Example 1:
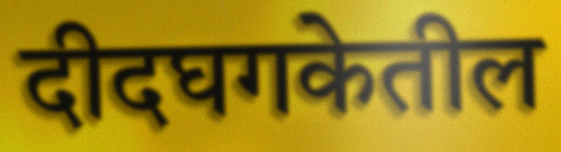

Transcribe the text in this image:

दीदघगकेतील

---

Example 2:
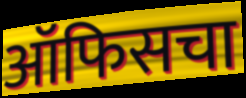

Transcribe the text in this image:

ऑफिसचा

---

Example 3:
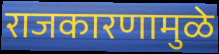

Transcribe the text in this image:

राजकारणामुळे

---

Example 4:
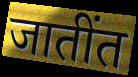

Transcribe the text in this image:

जातींत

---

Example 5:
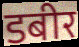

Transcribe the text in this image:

डबीर